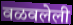
वळवलेली